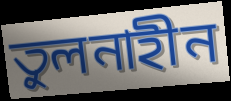
তুলনাহীন